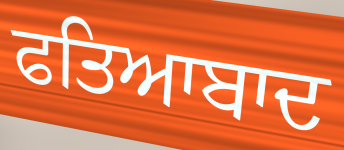
ਫਤਿਆਬਾਦ